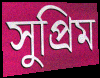
সুপ্রিম